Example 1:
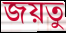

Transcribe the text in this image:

জয়তু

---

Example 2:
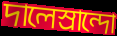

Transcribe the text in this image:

দালেস্রান্দো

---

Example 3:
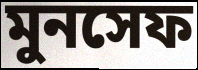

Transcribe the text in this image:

মুনসেফ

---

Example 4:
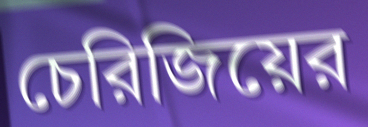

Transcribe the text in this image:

চেরিজিয়ের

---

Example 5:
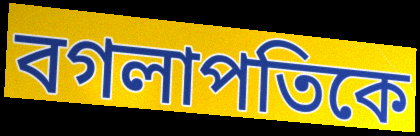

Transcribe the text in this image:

বগলাপতিকে